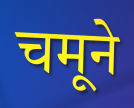
चमूने